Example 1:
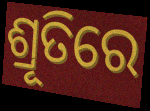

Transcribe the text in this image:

ଶ୍ରୂତିରେ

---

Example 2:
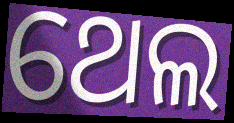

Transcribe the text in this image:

ଥେଲ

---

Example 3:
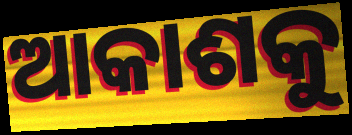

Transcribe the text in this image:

ଆକାଶକୁ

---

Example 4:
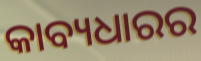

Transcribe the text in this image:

କାବ୍ୟଧାରର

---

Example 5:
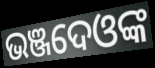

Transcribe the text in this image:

ଭଞ୍ଜଦେଓଙ୍କ